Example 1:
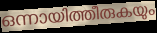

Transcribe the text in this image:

ഒന്നായിത്തീരുകയും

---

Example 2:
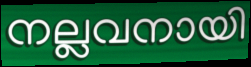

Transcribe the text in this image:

നല്ലവനായി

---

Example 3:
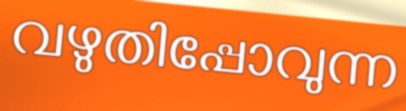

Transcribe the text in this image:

വഴുതിപ്പോവുന്ന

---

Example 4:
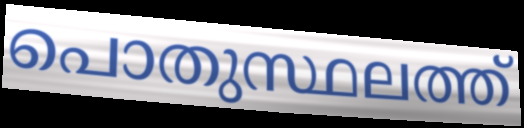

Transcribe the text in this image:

പൊതുസ്ഥലത്ത്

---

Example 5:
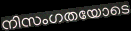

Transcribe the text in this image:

നിസംഗതയോടെ